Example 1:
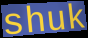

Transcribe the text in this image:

shuk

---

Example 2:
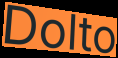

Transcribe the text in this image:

Dolto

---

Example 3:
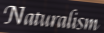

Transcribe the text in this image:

Naturalism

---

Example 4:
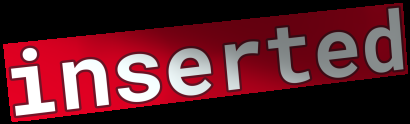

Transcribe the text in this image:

inserted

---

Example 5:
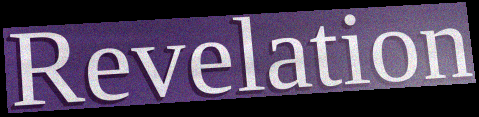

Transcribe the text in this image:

Revelation